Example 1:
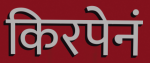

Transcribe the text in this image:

किरपेनं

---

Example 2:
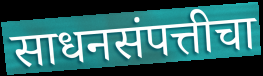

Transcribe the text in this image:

साधनसंपत्तीचा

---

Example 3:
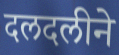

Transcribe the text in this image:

दलदलीने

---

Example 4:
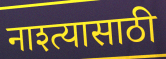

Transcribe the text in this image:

नाश्त्यासाठी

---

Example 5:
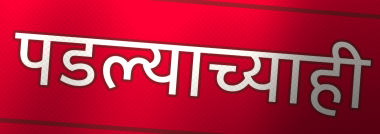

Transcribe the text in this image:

पडल्याच्याही